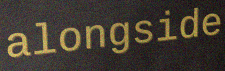
alongside